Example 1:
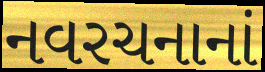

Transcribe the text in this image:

નવરચનાનાં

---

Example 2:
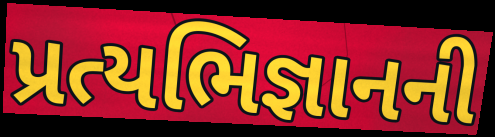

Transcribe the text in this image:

પ્રત્યભિજ્ઞાનની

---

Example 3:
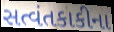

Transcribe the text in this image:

સત્વંતકાકીના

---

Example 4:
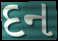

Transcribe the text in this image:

દન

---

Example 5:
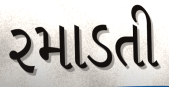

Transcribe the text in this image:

રમાડતી